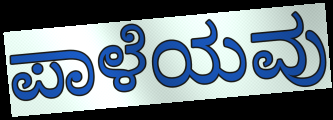
ಪಾಳೆಯವು